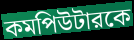
কমপিউটারকে